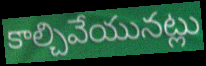
కాల్చివేయునట్లు